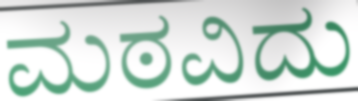
ಮಠವಿದು